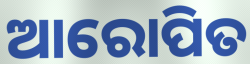
ଆରୋପିତ